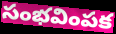
సంభవింపక